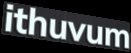
ithuvum